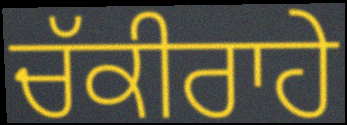
ਚੱਕੀਰਾਹੇ